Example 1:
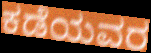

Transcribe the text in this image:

ಕಡೆಯವರ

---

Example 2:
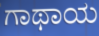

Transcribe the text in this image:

ಗಾಥಾಯ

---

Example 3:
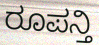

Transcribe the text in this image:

ರೂಪನ್ತಿ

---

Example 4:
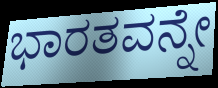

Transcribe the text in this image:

ಭಾರತವನ್ನೇ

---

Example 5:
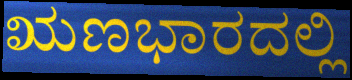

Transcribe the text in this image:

ಋಣಭಾರದಲ್ಲಿ